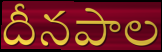
దీనపాల